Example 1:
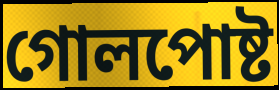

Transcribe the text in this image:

গোলপোষ্ট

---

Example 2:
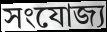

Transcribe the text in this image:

সংযোজ্য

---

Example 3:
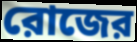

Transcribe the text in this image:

রোজের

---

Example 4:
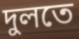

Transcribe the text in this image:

দুলতে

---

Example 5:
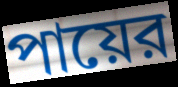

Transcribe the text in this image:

পায়ের